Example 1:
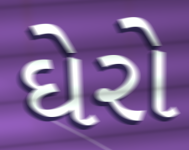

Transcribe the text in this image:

ઘેરો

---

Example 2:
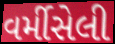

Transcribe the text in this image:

વર્મીસેલી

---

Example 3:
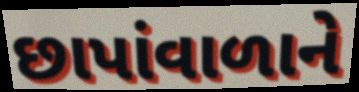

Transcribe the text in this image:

છાપાંવાળાને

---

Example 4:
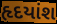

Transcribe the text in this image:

હૃદયાંશ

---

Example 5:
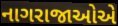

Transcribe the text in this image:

નાગરાજાઓએ